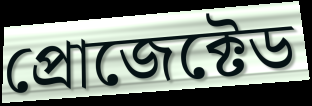
প্রোজেক্টেড